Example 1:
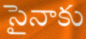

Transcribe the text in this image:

సైనాకు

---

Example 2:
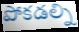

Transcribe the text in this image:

పోకడల్ని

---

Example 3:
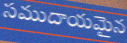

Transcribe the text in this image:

సముదాయమైన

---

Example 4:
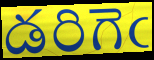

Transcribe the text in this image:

డరిగెఁ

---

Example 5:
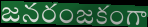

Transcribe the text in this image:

జనరంజకంగా